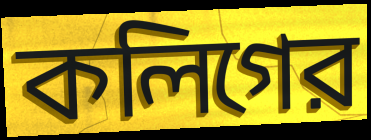
কলিগের